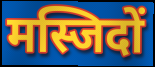
मस्जिदों